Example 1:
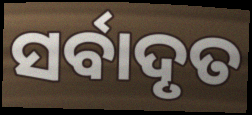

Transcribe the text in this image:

ସର୍ବାଦୃତ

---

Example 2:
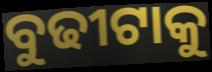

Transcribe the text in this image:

ବୁଢୀଟାକୁ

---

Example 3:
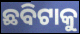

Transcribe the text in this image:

ଛବିଟାକୁ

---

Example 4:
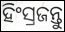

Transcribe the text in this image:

ହିଂସ୍ରଜନ୍ତୁ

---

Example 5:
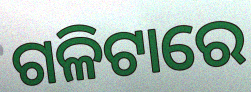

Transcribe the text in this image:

ଗଳିଟାରେ